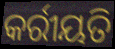
କର୍ରୀୟତି